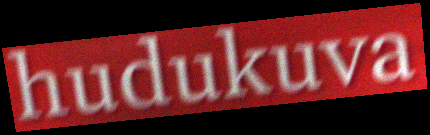
hudukuva